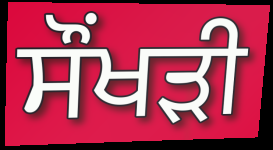
ਸੌਂਖੜੀ